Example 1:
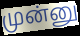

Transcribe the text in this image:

முன்னு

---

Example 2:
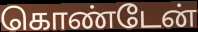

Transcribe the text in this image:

கொண்டேன்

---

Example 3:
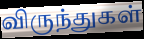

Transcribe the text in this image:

விருந்துகள்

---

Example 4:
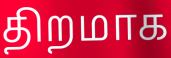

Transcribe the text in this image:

திறமாக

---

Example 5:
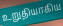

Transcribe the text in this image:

உறுதியாகிய